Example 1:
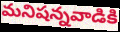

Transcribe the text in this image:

మనిషన్నవాడికి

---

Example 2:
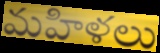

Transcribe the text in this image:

మహిళలు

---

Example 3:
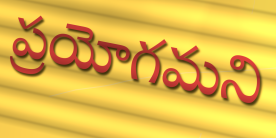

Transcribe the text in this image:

ప్రయోగమని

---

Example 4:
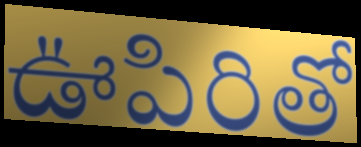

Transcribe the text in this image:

ఊపిరితో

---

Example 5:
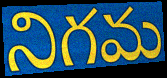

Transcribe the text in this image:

నిగమ